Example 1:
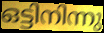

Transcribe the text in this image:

ഒട്ടിനിന്നു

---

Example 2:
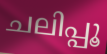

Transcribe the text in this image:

ചലിപ്പൂ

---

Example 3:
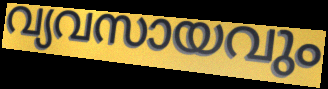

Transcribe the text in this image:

വ്യവസായവും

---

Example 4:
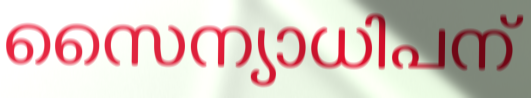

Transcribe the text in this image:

സൈന്യാധിപന്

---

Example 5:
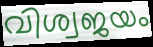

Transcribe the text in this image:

വിശ്വജയം